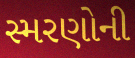
સ્મરણોની